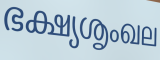
ഭക്ഷ്യശൃംഖല